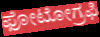
ಫೋಟೋಗ್ರಫಿ